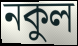
নকুল